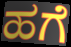
ಹಗೆ